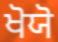
ਖੋਯੋ